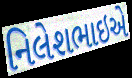
નિલેશભાઇએ